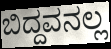
ಬಿದ್ದವನಲ್ಲ